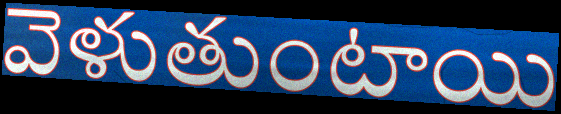
వెళుతుంటాయి